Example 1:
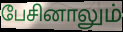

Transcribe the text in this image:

பேசினாலும்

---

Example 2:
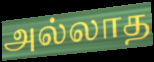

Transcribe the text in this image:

அல்லாத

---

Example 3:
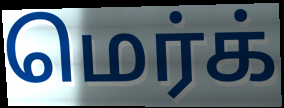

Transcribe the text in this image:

மெர்க்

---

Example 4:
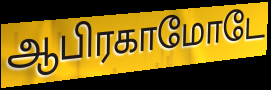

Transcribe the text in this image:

ஆபிரகாமோடே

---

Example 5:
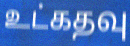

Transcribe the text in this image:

உட்கதவு